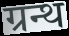
ग्रन्थ